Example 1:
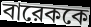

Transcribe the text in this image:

বারেককে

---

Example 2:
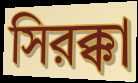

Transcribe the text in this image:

সিরক্কা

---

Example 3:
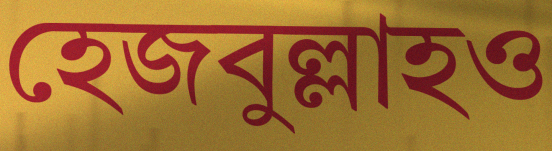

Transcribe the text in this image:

হেজবুল্লাহও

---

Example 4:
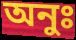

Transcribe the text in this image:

অনুঃ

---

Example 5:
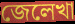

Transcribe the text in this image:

জেলেখা